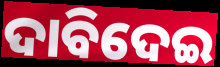
ଦାବିଦେଇ